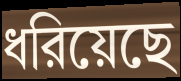
ধরিয়েছে